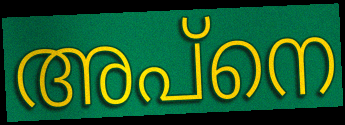
അപ്നെ